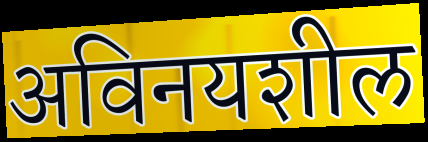
अविनयशील